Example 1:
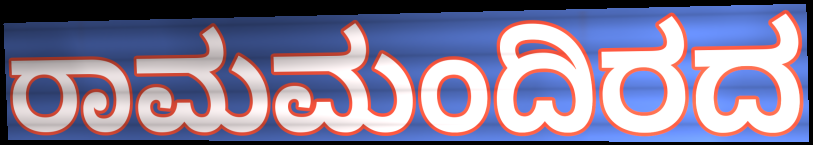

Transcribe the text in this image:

ರಾಮಮಂದಿರದ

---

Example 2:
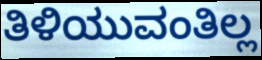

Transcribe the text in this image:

ತಿಳಿಯುವಂತಿಲ್ಲ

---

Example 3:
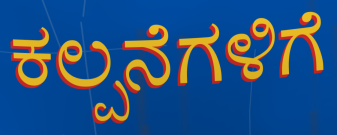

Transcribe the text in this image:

ಕಲ್ಪನೆಗಳಿಗೆ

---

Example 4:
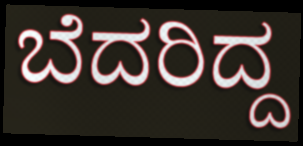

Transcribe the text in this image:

ಬೆದರಿದ್ದ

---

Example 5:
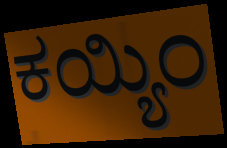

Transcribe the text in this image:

ಕಯ್ಯಿಂ